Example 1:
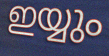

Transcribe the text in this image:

ഇയ്യും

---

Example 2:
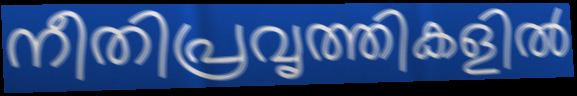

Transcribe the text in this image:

നീതിപ്രവൃത്തികളിൽ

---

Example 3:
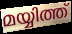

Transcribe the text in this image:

മയ്യിത്ത്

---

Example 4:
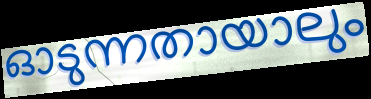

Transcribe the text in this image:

ഓടുന്നതായാലും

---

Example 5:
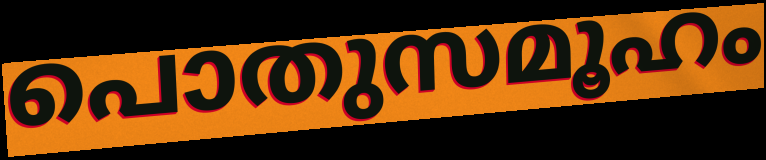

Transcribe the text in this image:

പൊതുസമൂഹം